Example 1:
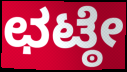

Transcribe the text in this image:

ಛಟ್ಠೇ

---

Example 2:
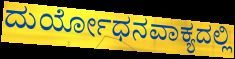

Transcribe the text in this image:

ದುರ್ಯೋಧನವಾಕ್ಯದಲ್ಲಿ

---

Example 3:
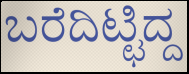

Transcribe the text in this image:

ಬರೆದಿಟ್ಟಿದ್ದ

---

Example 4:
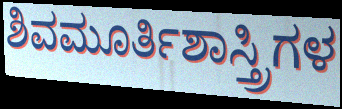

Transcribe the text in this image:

ಶಿವಮೂರ್ತಿಶಾಸ್ತ್ರಿಗಳ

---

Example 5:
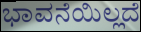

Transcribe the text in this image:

ಭಾವನೆಯಿಲ್ಲದೆ